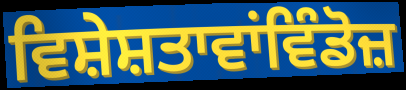
ਵਿਸ਼ੇਸ਼ਤਾਵਾਂਵਿੰਡੋਜ਼